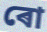
ৰো